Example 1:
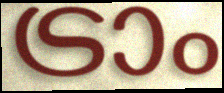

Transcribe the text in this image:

ട്രാം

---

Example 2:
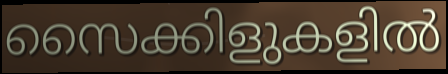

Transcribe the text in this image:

സൈക്കിളുകളിൽ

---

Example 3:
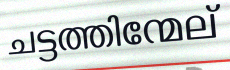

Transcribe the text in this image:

ചട്ടത്തിന്മേല്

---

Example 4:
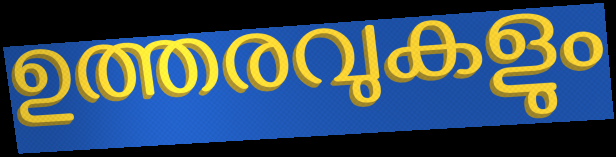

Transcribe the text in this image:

ഉത്തരവുകളും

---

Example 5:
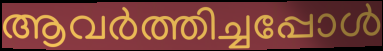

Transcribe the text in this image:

ആവർത്തിച്ചപ്പോൾ